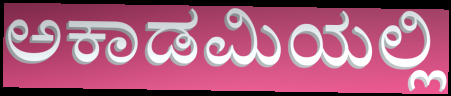
ಅಕಾಡಮಿಯಲ್ಲಿ